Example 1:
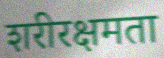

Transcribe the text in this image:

शरीरक्षमता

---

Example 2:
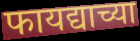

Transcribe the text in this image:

फायद्याच्या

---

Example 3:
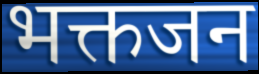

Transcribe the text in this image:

भक्तजन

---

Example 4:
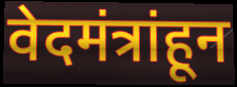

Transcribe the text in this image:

वेदमंत्रांहून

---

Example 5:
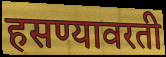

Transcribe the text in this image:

हसण्यावरती